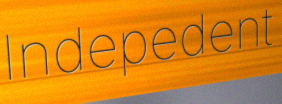
Indepedent